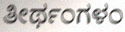
ತೀರ್ಥಂಗಳಂ